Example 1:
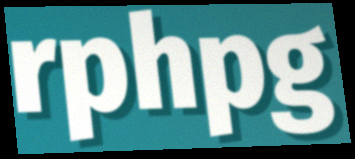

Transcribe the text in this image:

rphpg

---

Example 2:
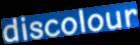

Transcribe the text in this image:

discolour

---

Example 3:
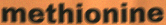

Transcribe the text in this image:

methionine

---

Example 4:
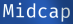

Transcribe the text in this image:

Midcap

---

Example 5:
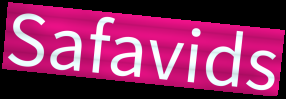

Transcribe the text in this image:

Safavids